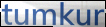
tumkur